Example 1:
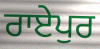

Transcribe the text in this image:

ਰਾਏਪੁਰ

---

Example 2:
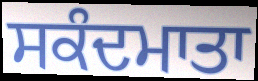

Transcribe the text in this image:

ਸਕੰਦਮਾਤਾ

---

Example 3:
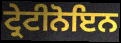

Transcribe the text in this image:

ਟ੍ਰੇਟੀਨੋਇਨ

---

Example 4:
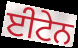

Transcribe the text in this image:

ਈਟੇਨ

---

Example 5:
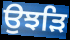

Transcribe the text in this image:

ਉਝੜਿ